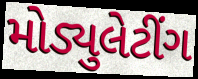
મોડ્યુલેટીંગ